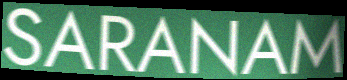
SARANAM